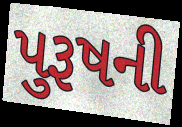
પુરૂષની